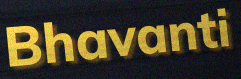
Bhavanti